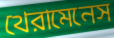
থেরামেনেস